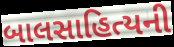
બાલસાહિત્યની